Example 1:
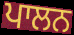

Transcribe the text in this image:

ਪਾਲਨ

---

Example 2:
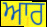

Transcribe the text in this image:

ਆਰ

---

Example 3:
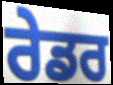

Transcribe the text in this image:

ਰੇਡਰ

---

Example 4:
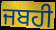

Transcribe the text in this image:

ਜਬਹੀ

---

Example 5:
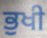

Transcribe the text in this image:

ਭੁਖੀ